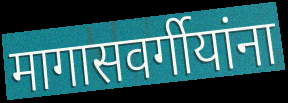
मागासवर्गीयांना